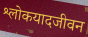
श्लोकयादजीवन